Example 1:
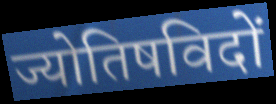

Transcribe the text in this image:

ज्योतिषविदों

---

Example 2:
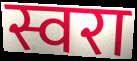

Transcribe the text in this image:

स्‍वरा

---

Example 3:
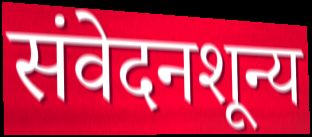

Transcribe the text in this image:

संवेदनशून्य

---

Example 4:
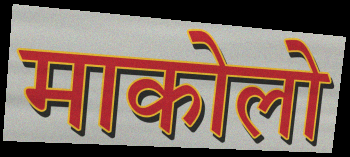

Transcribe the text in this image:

माकोलो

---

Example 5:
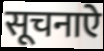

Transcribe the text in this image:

सूचनाऐ